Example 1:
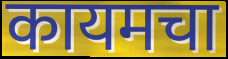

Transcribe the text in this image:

कायमचा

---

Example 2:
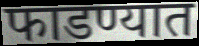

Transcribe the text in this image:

फाडण्यात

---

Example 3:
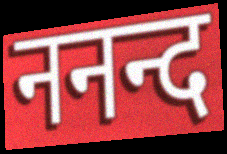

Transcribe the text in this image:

ननन्द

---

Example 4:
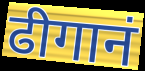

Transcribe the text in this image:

ढीगानं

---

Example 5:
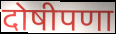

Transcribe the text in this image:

दोषीपणा